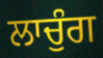
ਲਾਚੁੰਗ